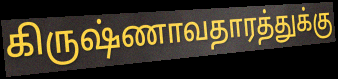
கிருஷ்ணாவதாரத்துக்கு